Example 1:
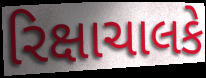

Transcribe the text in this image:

રિક્ષાચાલકે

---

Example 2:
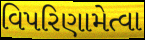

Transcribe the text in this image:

વિપરિણામેત્વા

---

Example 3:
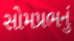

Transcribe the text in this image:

સોમપ્રભનું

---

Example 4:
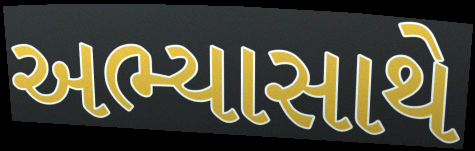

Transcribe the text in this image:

અભ્યાસાથે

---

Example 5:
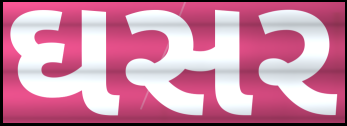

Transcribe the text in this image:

ઘસર